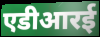
एडीआरई